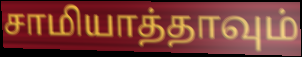
சாமியாத்தாவும்